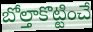
బోల్తాకొట్టించే